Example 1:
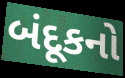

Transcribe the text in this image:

બંદૂકનો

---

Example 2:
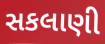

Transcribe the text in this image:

સકલાણી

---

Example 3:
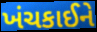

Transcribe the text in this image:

ખંચકાઈને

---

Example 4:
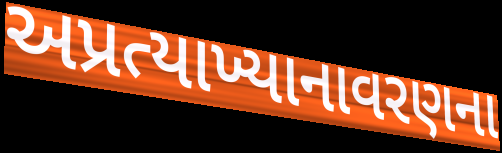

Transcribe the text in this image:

અપ્રત્યાખ્યાનાવરણના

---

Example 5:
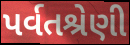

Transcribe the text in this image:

પર્વતશ્રેણી